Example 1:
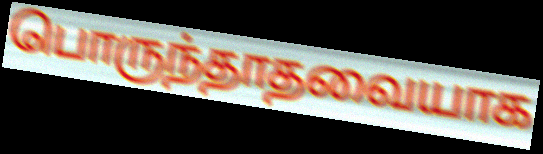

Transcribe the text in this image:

பொருந்தாதவையாக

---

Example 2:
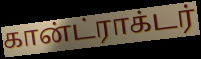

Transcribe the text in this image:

கான்ட்ராக்டர்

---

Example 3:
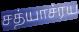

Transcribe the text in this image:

சத்யாச்ரய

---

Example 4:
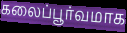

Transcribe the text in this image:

கலைப்பூர்வமாக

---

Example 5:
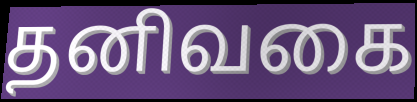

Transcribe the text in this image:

தனிவகை